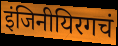
इंजिनीयिरगचं